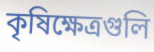
কৃষিক্ষেত্রগুলি